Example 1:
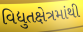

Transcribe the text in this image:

વિદ્યુતક્ષેત્રમાંથી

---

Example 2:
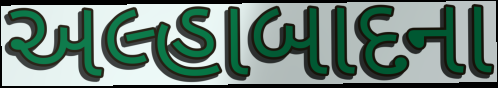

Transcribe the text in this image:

અલ્હાબાદના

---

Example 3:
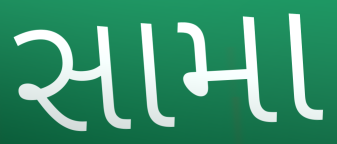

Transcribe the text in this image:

સામા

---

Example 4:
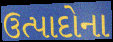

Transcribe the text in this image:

ઉત્પાદોના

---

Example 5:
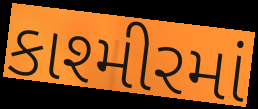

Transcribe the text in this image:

કાશ્મીરમાં